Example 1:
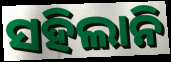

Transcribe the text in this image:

ସହିଲାନି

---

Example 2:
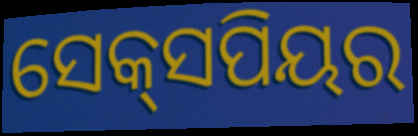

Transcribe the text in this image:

ସେକ୍‌ସପିୟର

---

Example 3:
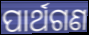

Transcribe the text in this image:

ପାର୍ଥଗଣ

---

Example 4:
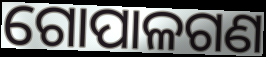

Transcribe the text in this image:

ଗୋପାଳଗଣ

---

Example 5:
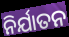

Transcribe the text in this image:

ନିର୍ଯାତନ